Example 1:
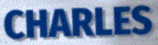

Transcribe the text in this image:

CHARLES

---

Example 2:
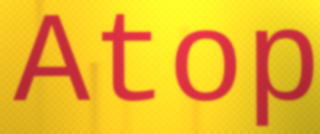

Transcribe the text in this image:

Atop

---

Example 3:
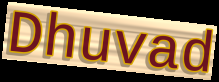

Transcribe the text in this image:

Dhuvad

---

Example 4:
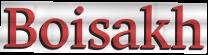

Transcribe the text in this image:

Boisakh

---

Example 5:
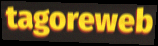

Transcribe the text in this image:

tagoreweb